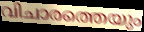
വിചാരത്തെയും